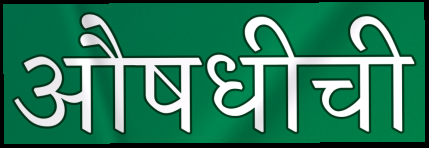
औषधीची